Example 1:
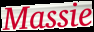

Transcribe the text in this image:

Massie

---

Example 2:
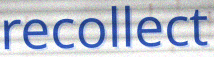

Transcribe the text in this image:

recollect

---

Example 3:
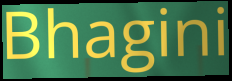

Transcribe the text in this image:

Bhagini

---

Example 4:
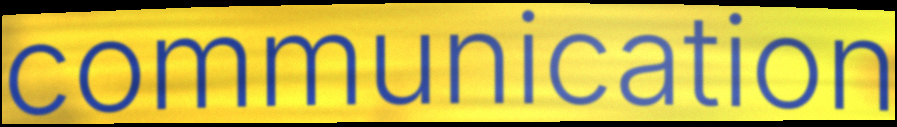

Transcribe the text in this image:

communication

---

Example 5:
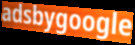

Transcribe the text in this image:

adsbygoogle